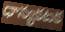
ధాన్యకటక